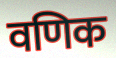
वणिक